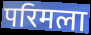
परिमला